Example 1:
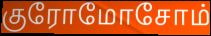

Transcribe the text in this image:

குரோமோசோம்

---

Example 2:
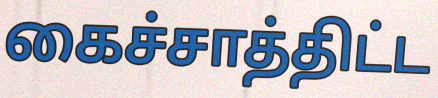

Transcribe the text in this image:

கைச்சாத்திட்ட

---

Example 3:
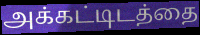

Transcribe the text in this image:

அக்கட்டிடத்தை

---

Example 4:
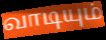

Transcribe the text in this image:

வாடியும்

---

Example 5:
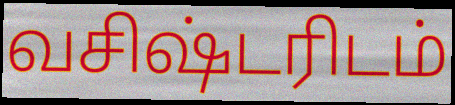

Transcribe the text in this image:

வசிஷ்டரிடம்